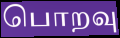
பொறவு